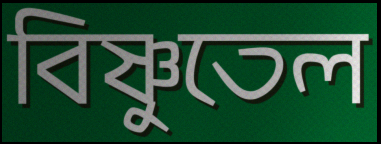
বিষ্ণুতেল